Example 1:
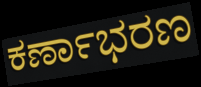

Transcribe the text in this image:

ಕರ್ಣಾಭರಣ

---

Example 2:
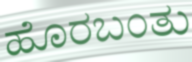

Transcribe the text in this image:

ಹೊರಬಂತು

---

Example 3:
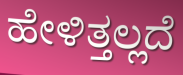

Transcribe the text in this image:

ಹೇಳಿತ್ತಲ್ಲದೆ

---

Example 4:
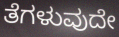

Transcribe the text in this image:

ತೆಗಳುವುದೇ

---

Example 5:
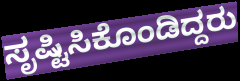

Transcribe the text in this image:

ಸೃಷ್ಟಿಸಿಕೊಂಡಿದ್ದರು